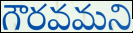
గౌరవమని